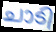
ചാടി